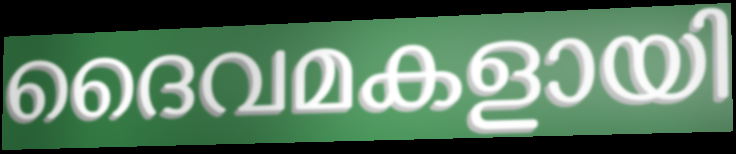
ദൈവമകളായി